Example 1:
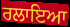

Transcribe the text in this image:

ਰਲਾਇਆ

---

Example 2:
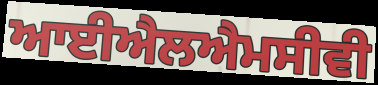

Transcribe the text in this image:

ਆਈਐਲਐਮਸੀਵੀ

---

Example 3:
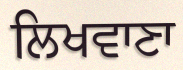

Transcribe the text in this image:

ਲਿਖਵਾਣਾ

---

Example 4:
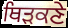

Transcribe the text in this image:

ਥਿੜਕਣੇ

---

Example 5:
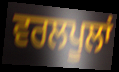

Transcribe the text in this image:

ਵਰਲਪੂਲਾਂ